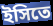
ইসিতে